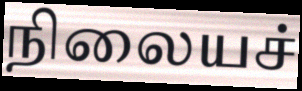
நிலையச்